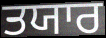
ਤਯਾਰ